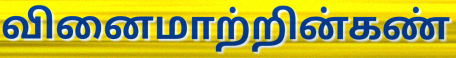
வினைமாற்றின்கண்